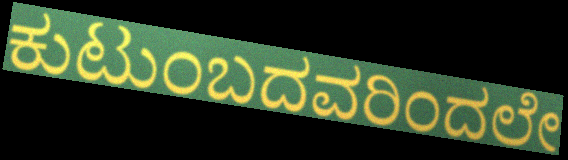
ಕುಟುಂಬದವರಿಂದಲೇ